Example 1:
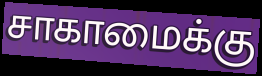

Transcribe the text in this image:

சாகாமைக்கு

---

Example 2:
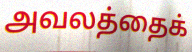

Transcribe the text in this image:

அவலத்தைக்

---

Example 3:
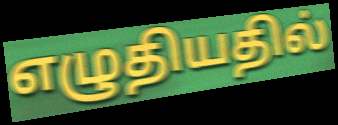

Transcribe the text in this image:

எழுதியதில்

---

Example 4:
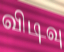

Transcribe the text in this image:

விடிவு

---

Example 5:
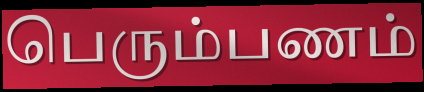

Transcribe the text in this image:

பெரும்பணம்